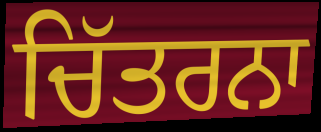
ਚਿੱਤਰਨਾ